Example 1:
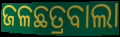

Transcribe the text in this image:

ଜଳଛତ୍ରବାଲା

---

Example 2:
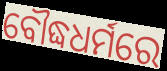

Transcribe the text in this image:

ବୌଦ୍ଧଧର୍ମରେ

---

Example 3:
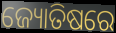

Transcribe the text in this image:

ଜ୍ୟୋତିଷରେ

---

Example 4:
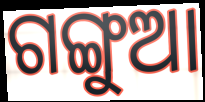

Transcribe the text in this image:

ଗଙ୍ଗୁଆ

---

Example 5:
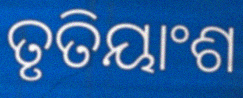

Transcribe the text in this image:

ତୃତିୟାଂଶ